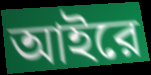
আইরে